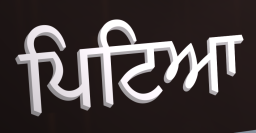
ਪਿਟਿਆ